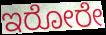
ಇರೋರೇ